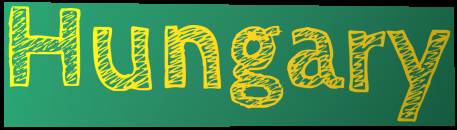
Hungary